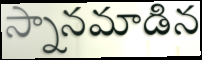
స్నానమాడిన